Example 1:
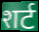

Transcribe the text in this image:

शर्ट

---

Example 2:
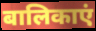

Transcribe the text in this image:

बालिकाएं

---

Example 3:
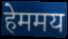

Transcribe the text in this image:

हेममय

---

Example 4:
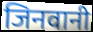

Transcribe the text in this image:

जिनवानी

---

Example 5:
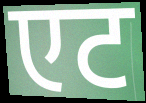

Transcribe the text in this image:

एट